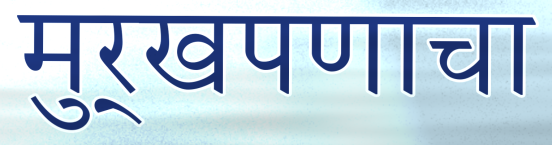
मुर्खपणाचा